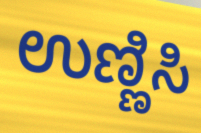
ಉಣ್ಣಿಸಿ